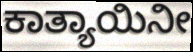
ಕಾತ್ಯಾಯಿನೀ